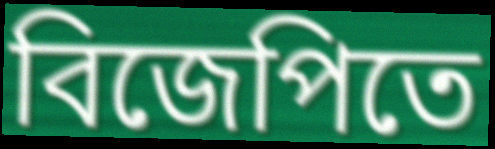
বিজেপিতে